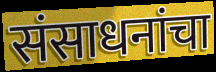
संसाधनांचा